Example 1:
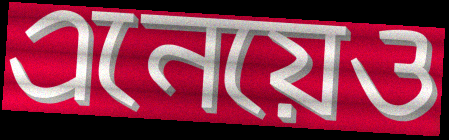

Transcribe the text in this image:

এনেয়েও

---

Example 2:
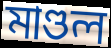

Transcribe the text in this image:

মাণ্ডল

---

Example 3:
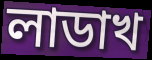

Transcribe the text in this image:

লাডাখ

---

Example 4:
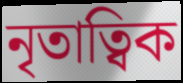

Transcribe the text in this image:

নৃতাত্বিক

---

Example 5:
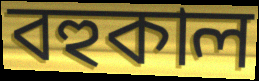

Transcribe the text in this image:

বহুকাল